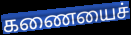
கணையைச்